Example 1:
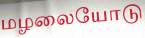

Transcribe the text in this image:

மழலையோடு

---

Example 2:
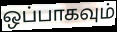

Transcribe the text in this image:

ஒப்பாகவும்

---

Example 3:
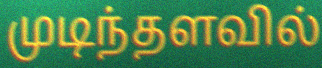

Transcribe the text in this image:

முடிந்தளவில்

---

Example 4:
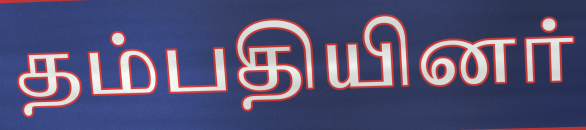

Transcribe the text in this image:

தம்பதியினர்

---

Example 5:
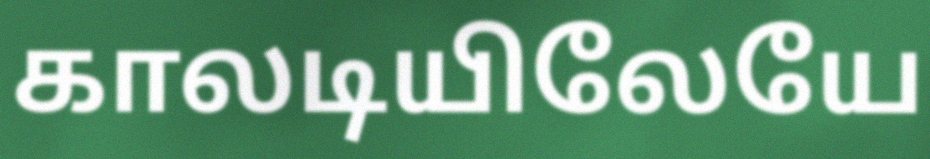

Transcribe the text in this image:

காலடியிலேயே